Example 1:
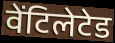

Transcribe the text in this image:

वेंटिलेटेड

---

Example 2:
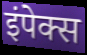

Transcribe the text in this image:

इंपेक्स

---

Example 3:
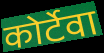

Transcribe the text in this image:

कोर्टेवा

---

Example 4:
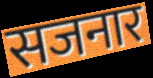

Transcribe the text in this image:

सजनार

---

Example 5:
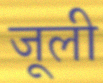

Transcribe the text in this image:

जूली